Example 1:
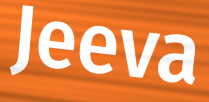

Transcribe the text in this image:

Jeeva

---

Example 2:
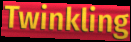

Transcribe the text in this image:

Twinkling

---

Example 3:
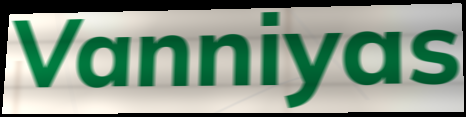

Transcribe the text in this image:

Vanniyas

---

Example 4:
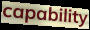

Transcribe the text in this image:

capability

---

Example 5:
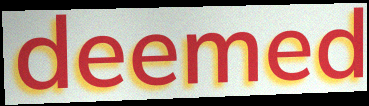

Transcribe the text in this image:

deemed